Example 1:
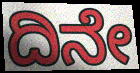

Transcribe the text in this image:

ದಿನೇ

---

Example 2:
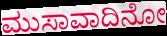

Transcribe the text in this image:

ಮುಸಾವಾದಿನೋ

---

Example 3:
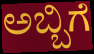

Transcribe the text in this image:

ಅಬ್ಬಿಗೆ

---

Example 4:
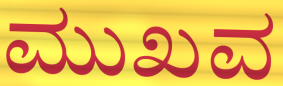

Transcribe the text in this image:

ಮುಖವ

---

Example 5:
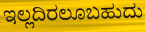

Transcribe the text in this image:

ಇಲ್ಲದಿರಲೂಬಹುದು